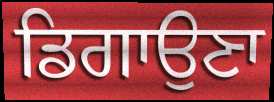
ਡਿਗਾਉਣਾ